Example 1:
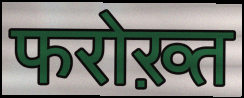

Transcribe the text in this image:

फरोख़्त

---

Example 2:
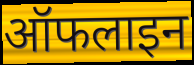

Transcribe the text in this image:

ऑफलाइन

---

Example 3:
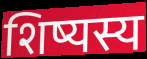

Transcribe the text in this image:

शिष्यस्य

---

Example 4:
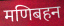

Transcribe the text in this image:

मणिबहन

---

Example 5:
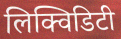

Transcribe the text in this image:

लिक्विडिटी